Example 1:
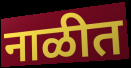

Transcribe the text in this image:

नाळीत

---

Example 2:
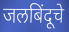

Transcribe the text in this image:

जलबिंदूचे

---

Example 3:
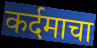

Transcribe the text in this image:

कर्दमाचा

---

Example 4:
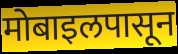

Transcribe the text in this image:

मोबाइलपासून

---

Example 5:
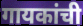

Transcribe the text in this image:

गायकांची